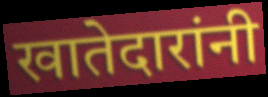
खातेदारांनी